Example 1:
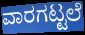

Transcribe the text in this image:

ವಾರಗಟ್ಟಲೆ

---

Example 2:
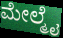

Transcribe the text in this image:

ಮೇಲ್ಮೈ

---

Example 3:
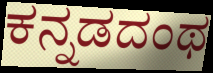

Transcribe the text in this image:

ಕನ್ನಡದಂಥ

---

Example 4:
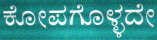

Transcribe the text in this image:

ಕೋಪಗೊಳ್ಳದೇ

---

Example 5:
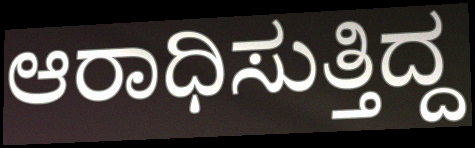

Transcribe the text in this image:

ಆರಾಧಿಸುತ್ತಿದ್ದ